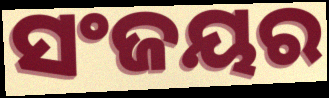
ସଂଜୟର